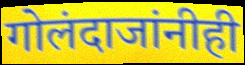
गोलंदाजांनीही